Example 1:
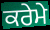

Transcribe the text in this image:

ਕਰੇਮੇ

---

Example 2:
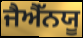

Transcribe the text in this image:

ਜੈਐੱਨਯੂ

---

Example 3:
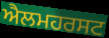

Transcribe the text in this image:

ਐਲਮਹਰਸਟ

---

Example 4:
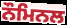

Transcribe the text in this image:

ਨੌਮਿਨਲ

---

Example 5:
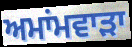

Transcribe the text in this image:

ਅਮਾਂਮਵਾੜਾ